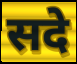
सदे